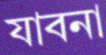
যাবনা